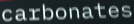
carbonates